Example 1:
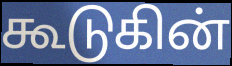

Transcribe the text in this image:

கூடுகின்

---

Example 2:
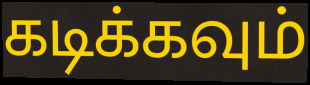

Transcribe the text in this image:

கடிக்கவும்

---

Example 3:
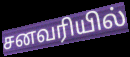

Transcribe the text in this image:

சனவரியில்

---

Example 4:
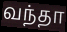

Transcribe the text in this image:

வந்தா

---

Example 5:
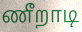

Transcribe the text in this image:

ணீறாடி